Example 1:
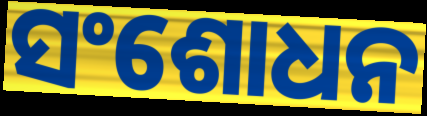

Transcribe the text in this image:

ସଂଶୋଧନ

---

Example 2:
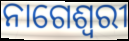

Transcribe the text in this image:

ନାଗେଶ୍ୱରୀ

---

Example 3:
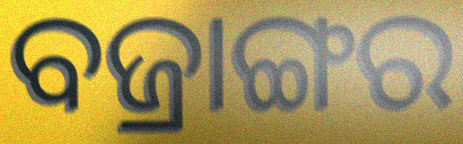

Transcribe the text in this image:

ବଜ୍ରାଙ୍ଗର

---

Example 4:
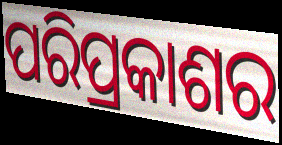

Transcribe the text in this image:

ପରିପ୍ରକାଶର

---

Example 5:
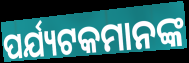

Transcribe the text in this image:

ପର୍ଯ୍ୟଟକମାନଙ୍କ